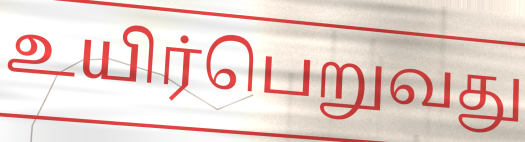
உயிர்பெறுவது